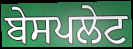
ਬੇਸਪਲੇਟ